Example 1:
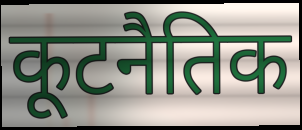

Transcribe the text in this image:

कूटनैतिक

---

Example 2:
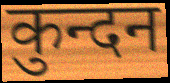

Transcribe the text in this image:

कुन्दन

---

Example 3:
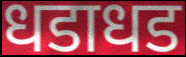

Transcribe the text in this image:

धडाधड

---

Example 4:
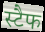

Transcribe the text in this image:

स्टैफ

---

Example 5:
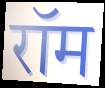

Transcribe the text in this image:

रॉम